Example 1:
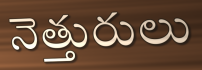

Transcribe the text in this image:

నెత్తురులు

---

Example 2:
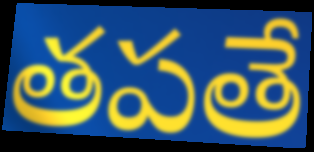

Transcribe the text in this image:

తపతే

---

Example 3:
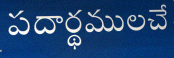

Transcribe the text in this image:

పదార్థములచే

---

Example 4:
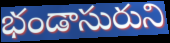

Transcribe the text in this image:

భండాసురుని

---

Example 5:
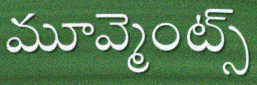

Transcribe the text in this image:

మూవ్మెంట్స్